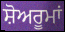
ਸ਼ੋਅਰੂਮਾਂ